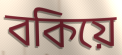
বকিয়ে